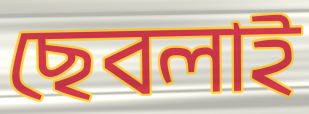
ছেবলাই